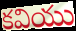
కవియు